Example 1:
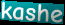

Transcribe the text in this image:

kashe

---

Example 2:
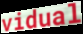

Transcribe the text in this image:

vidual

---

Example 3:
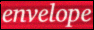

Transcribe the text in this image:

envelope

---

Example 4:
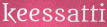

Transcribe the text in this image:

keessatti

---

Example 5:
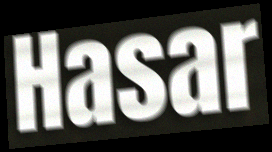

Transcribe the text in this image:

Hasar